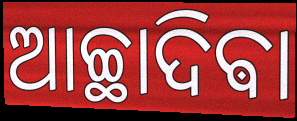
ଆଚ୍ଛାଦିଵା